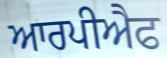
ਆਰਪੀਐਫ